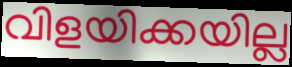
വിളയിക്കയില്ല